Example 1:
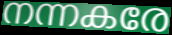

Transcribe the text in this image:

നന്നകരേ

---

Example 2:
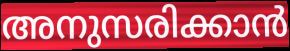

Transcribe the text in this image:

അനുസരിക്കാൻ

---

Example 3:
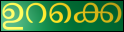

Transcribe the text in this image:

ഉറക്കെ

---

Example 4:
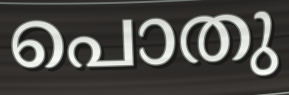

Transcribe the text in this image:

പൊതു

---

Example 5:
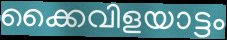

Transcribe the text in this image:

ക്കൈവിളയാട്ടം